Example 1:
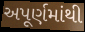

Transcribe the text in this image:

અપૂર્ણમાંથી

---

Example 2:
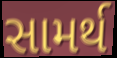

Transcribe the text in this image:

સામર્થ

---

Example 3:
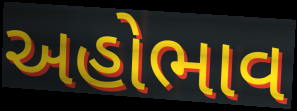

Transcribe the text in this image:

અહોભાવ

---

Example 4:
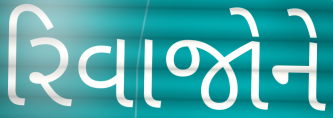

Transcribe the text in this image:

રિવાજોને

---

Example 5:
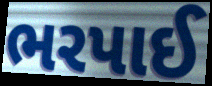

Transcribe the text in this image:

ભરપાઈ